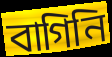
বাগিনি